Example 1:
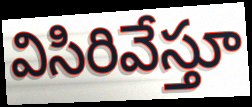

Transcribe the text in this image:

విసిరివేస్తూ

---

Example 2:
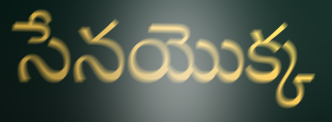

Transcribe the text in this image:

సేనయొక్క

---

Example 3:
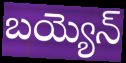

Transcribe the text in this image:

బయ్యెన్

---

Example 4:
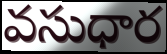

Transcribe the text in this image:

వసుధార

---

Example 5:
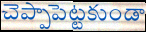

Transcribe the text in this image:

చెప్పాపెట్టకుండా